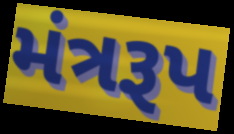
મંત્રરૂપ